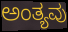
ಅಂತ್ಯವು